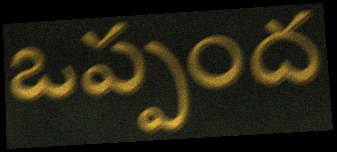
ఒప్పంద